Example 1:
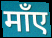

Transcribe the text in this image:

माँए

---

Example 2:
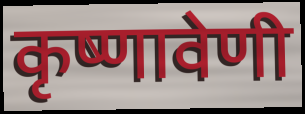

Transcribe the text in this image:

कृष्णावेणी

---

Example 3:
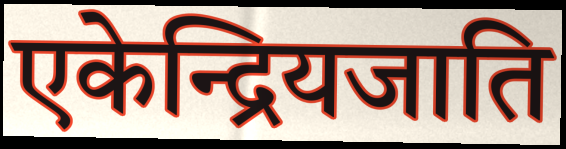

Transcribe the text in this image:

एकेन्द्रियजाति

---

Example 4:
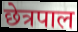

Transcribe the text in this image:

छेत्रपाल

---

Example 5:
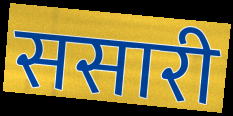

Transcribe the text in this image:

ससारी